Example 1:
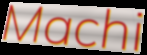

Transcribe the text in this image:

Machi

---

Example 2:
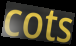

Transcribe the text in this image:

cots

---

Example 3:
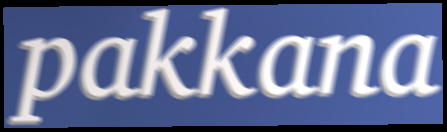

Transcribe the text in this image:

pakkana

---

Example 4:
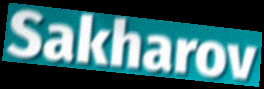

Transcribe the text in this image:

Sakharov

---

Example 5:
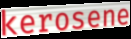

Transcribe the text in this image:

kerosene